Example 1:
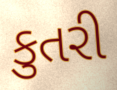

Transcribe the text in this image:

કુતરી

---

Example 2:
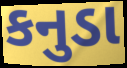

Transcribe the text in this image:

કનુડા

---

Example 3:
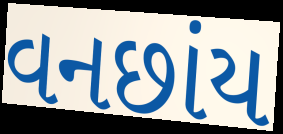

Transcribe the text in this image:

વનછાંય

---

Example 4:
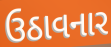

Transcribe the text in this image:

ઉઠાવનાર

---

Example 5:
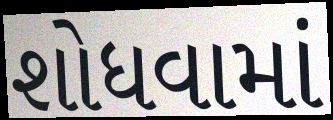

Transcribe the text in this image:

શોધવામાં